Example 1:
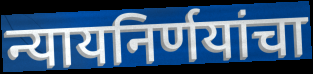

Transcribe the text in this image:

न्यायनिर्णयांचा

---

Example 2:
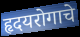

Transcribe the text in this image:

हृदयरोगाचे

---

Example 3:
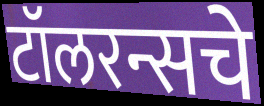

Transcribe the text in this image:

टॉलरन्सचे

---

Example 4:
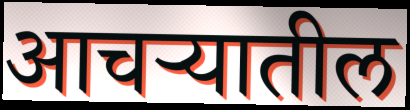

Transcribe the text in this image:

आचऱ्यातील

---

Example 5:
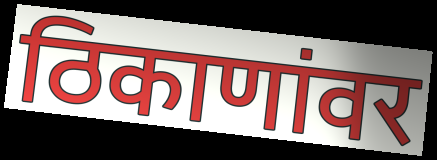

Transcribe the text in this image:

ठिकाणांवर